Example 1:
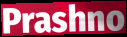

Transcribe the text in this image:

Prashno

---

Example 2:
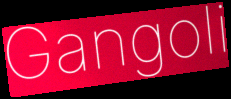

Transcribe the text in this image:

Gangoli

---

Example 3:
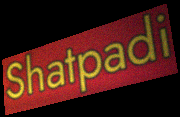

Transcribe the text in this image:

Shatpadi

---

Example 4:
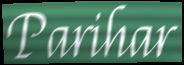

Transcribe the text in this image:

Parihar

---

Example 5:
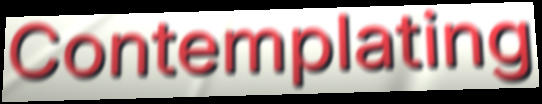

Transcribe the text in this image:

Contemplating